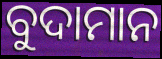
ବୁଦାମାନ